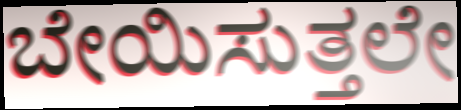
ಬೇಯಿಸುತ್ತಲೇ